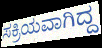
ಸಕ್ರಿಯವಾಗಿದ್ದ